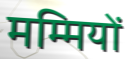
मम्मियों